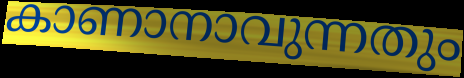
കാണാനാവുന്നതും